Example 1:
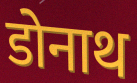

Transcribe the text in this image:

डोनाथ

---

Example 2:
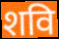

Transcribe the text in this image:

शवि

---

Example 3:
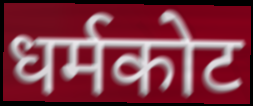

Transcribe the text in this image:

धर्मकोट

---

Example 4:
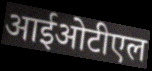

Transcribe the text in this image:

आईओटीएल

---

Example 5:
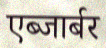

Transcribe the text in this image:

एब्जार्बर